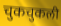
चुकचुकली